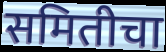
समितीचा